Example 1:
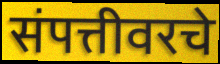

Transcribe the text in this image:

संपत्तीवरचे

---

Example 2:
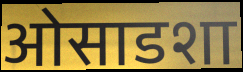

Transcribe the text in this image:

ओसाडशा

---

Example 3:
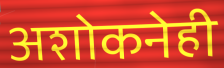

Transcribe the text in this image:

अशोकनेही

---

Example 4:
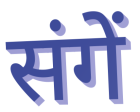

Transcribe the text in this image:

संगें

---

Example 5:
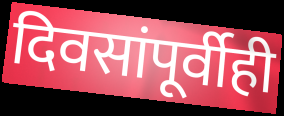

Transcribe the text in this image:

दिवसांपूर्वीही